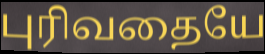
புரிவதையே